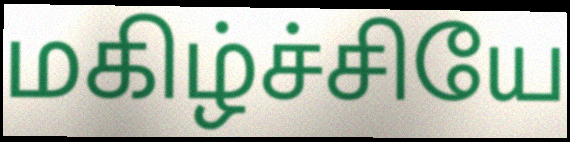
மகிழ்ச்சியே